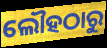
ଲୌହଠାରୁ